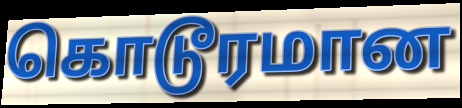
கொடூரமான